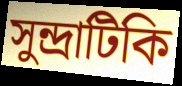
সুন্দ্রাটিকি